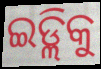
ଇଡ୍ଲିକୁ